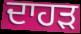
ਦਾਹੜ